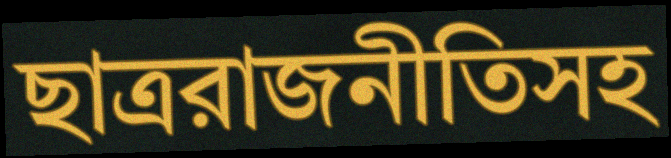
ছাত্ররাজনীতিসহ